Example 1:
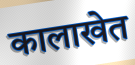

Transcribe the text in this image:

कालाखेत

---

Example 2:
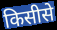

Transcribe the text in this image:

किसीसे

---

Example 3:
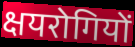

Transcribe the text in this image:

क्षयरोगियों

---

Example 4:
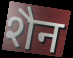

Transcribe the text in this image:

शैन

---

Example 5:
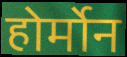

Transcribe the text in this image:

होर्मोन